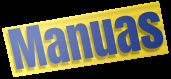
Manuas